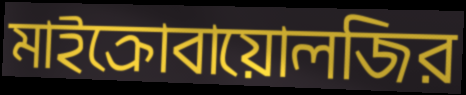
মাইক্রোবায়োলজির